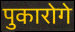
पुकारोगे